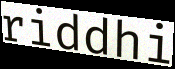
riddhi